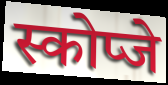
स्कोप्जे